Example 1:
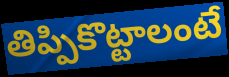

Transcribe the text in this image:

తిప్పికొట్టాలంటే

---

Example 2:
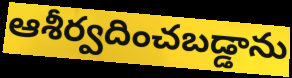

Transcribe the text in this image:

ఆశీర్వదించబడ్డాను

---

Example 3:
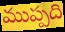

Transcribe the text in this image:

ముప్పది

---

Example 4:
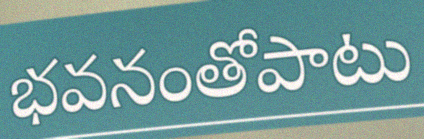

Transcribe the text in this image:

భవనంతోపాటు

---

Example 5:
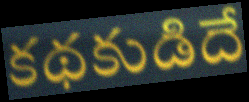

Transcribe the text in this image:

కథకుడిదే